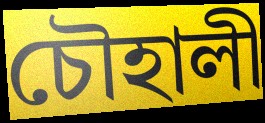
চৌহালী